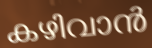
കഴിവാൻ